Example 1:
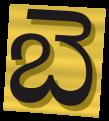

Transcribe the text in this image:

బె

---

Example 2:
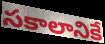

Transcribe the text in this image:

సకాలానికే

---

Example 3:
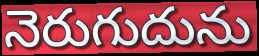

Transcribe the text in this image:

నెరుగుదును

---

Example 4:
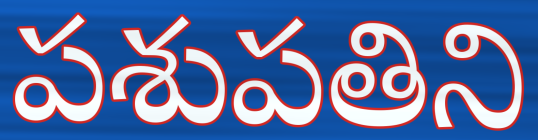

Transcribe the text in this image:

పశుపతిని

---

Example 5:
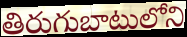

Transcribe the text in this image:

తిరుగుబాటులోని